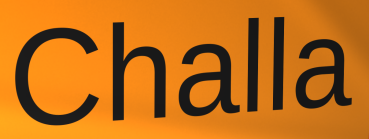
Challa